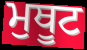
ਮੁਥੂਟ